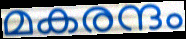
മകരന്ദം